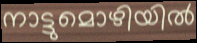
നാട്ടുമൊഴിയിൽ